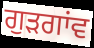
ਗੁੜਗਾਂਵ